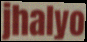
jhalyo